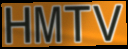
HMTV